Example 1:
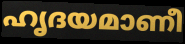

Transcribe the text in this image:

ഹൃദയമാണീ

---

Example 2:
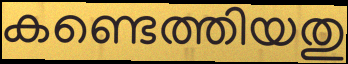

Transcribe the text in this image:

കണ്ടെത്തിയതു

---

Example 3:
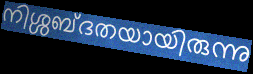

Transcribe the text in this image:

നിശ്ശബ്ദതയായിരുന്നു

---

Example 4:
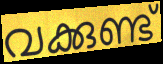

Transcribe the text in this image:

വക്കുണ്ട്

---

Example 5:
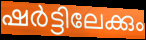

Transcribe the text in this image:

ഷർട്ടിലേക്കും